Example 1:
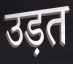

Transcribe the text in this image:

उड़त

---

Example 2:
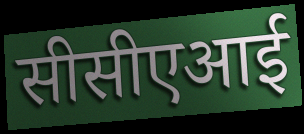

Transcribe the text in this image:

सीसीएआई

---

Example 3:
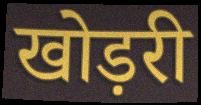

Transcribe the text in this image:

खोड़री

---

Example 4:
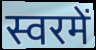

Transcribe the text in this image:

स्वरमें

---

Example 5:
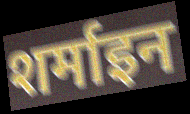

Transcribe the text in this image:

शर्माइन